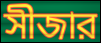
সীজার